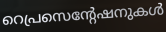
റെപ്രസെന്റേഷനുകൾ